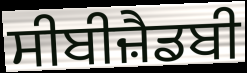
ਸੀਬੀਜ਼ੈਡਬੀ